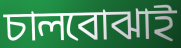
চালবোঝাই